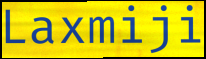
Laxmiji